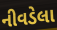
નીવડેલા